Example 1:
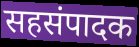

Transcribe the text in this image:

सहसंपादक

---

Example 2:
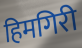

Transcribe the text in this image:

हिमगिरी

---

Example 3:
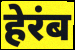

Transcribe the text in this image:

हेरंब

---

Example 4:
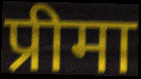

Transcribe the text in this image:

प्रीमा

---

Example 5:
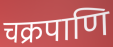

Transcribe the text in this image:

चक्रपाणि